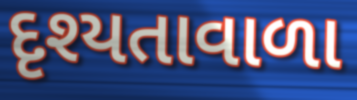
દૃશ્યતાવાળા